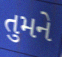
તુમને